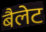
बैलेट